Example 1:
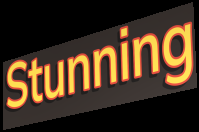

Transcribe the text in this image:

Stunning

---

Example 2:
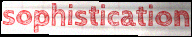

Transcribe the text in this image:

sophistication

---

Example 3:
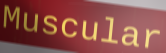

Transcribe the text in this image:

Muscular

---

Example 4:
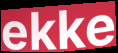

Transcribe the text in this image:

ekke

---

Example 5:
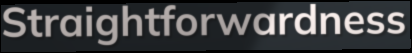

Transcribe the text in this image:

Straightforwardness